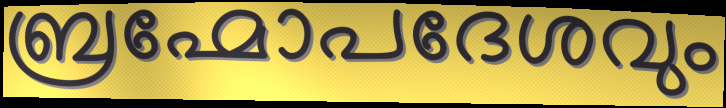
ബ്രഹ്മോപദേശവും